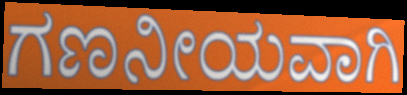
ಗಣನೀಯವಾಗಿ